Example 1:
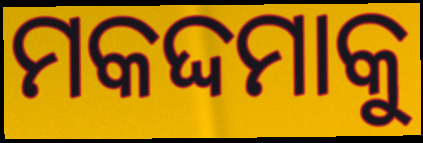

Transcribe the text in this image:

ମକଦ୍ଦମାକୁ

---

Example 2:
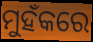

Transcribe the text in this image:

ମୁହଁକରେ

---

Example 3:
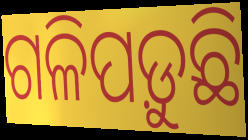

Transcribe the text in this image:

ଗଳିପଡ଼ୁଛି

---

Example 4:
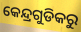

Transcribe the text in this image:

କେନ୍ଦ୍ରଗୁଡିକରୁ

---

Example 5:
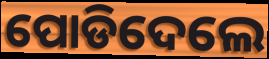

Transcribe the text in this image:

ପୋଡିଦେଲେ